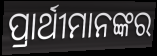
ପ୍ରାର୍ଥୀମାନଙ୍କର